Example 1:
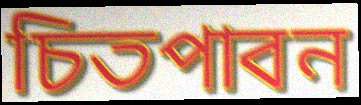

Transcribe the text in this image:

চিতপাবন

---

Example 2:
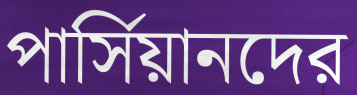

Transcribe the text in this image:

পার্সিয়ানদের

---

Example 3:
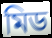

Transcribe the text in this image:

মিড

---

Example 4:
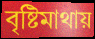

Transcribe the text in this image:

বৃষ্টিমাথায়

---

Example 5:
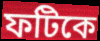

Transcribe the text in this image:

ফটিকে